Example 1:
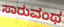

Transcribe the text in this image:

ಸಾರುವಂಥ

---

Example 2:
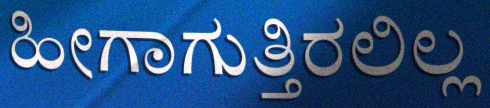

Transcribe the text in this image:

ಹೀಗಾಗುತ್ತಿರಲಿಲ್ಲ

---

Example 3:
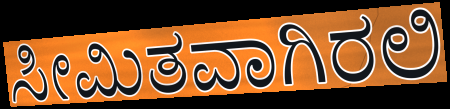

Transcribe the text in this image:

ಸೀಮಿತವಾಗಿರಲಿ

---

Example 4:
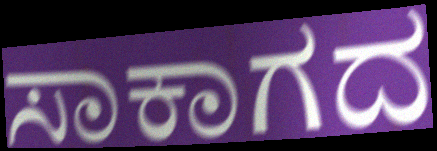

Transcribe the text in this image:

ಸಾಕಾಗದ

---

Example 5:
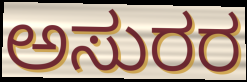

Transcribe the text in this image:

ಅಸುರರ